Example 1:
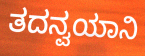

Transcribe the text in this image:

ತದನ್ವಯಾನಿ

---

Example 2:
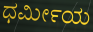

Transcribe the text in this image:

ಧರ್ಮೀಯ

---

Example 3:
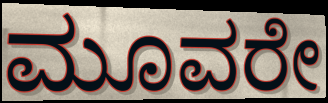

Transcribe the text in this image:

ಮೂವರೇ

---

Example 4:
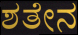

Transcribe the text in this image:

ಶತೇನ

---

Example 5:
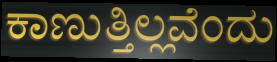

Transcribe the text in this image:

ಕಾಣುತ್ತಿಲ್ಲವೆಂದು